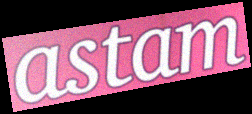
astam